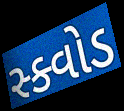
સ્ક્વોડ